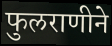
फुलराणीने